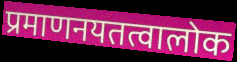
प्रमाणनयतत्वालोक